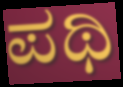
ಪಥಿ